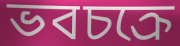
ভবচক্রে